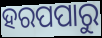
ହରପପାରୁ